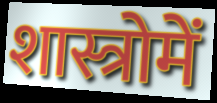
शास्त्रोमें